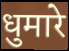
धुमारे